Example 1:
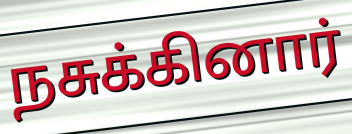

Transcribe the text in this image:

நசுக்கினார்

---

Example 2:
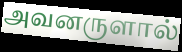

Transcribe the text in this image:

அவனருளால்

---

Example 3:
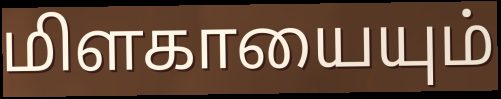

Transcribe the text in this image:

மிளகாயையும்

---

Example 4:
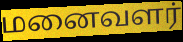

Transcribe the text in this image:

மனைவளர்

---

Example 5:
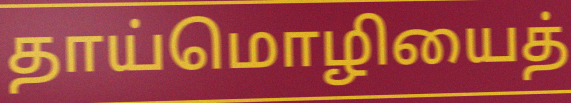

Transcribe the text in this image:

தாய்மொழியைத்